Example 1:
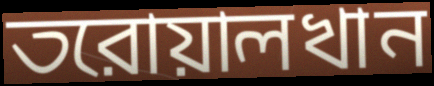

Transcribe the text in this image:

তরোয়ালখান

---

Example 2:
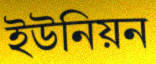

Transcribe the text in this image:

ইউনিয়ন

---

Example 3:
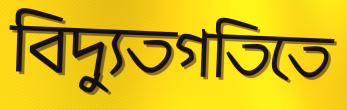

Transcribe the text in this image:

বিদ্যুতগতিতে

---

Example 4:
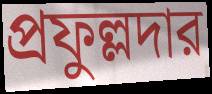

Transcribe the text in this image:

প্রফুল্লদার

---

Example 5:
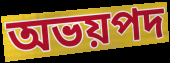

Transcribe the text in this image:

অভয়পদ